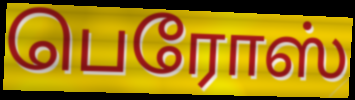
பெரோஸ்